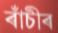
ৰাঁচীৰ